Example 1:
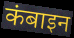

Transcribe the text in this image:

कंबाइन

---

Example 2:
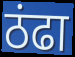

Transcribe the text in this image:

ठंढा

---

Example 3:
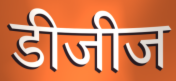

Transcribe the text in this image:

डीजीज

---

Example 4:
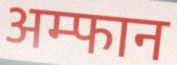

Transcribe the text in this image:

अम्फान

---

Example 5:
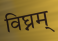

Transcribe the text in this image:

विघ्नम्